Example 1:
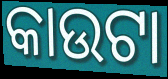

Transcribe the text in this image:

କାଉଟା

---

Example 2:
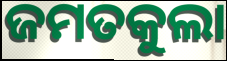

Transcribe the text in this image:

ଜମତକୁଲା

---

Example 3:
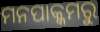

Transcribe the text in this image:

ମନପାକ୍କମରୁ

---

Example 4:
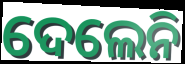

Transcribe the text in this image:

ଦେଲେନି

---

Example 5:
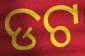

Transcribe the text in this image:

ଡଟ